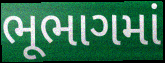
ભૂભાગમાં